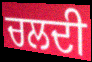
ਚਲਦੀ